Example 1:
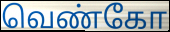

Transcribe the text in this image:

வெண்கோ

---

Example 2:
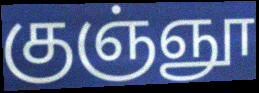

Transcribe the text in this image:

குஞ்ஞூ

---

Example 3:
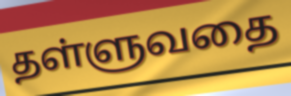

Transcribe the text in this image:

தள்ளுவதை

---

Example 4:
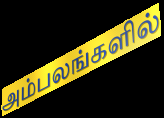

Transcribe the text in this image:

அம்பலங்களில்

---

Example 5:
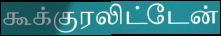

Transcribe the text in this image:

கூக்குரலிட்டேன்